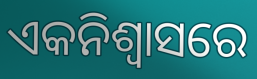
ଏକନିଶ୍ୱାସରେ